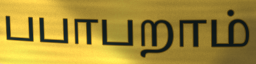
பபாபறாம்